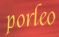
porleo